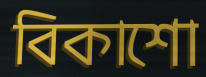
বিকাশো